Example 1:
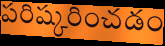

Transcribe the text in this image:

పరిష్కరించడం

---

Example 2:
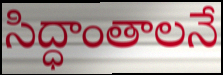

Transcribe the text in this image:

సిద్ధాంతాలనే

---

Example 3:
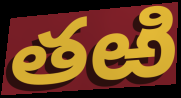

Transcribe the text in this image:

తఱి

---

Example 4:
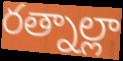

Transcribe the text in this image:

రత్నాల్లా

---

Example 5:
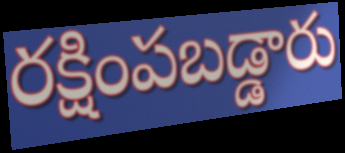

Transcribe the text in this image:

రక్షింపబడ్డారు